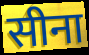
सीना